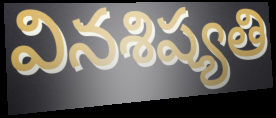
వినశిష్యతి